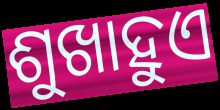
ଶୁଖାହୁଏ